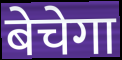
बेचेगा